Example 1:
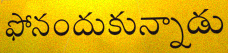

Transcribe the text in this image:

ఫోనందుకున్నాడు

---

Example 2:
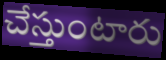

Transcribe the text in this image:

చేస్తుంటారు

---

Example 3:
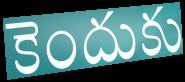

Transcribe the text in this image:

కెందుకు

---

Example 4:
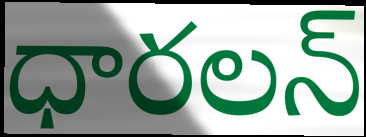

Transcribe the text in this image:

ధారలన్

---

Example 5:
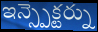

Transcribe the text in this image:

ఇన్స్పెక్టర్ను